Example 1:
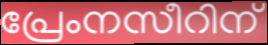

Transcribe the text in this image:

പ്രേംനസീറിന്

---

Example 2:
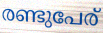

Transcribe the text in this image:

രണ്ടുപേര്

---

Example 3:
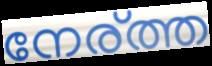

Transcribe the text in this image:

നേര്ത്ത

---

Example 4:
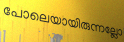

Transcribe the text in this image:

പോലെയായിരുന്നല്ലോ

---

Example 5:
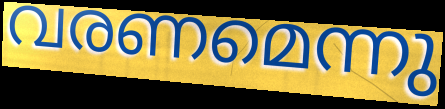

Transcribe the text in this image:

വരണമെന്നു